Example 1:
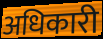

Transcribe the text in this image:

अधिकारी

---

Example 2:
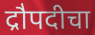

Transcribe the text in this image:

द्रौपदीचा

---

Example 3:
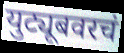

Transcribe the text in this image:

युट्यूबवरचं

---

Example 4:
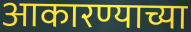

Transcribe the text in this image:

आकारण्याच्या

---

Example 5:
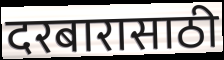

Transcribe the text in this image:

दरबारासाठी